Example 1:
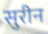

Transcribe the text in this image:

सुरीन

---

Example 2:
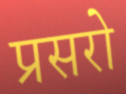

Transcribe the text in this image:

प्रसरो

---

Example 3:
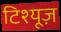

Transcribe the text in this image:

टिश्यूज़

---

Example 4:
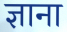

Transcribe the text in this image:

ज्ञाना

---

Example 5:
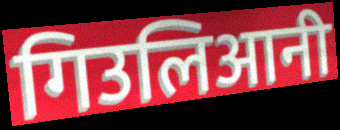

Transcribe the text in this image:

गिउलिआनी